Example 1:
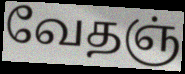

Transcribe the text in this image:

வேதஞ்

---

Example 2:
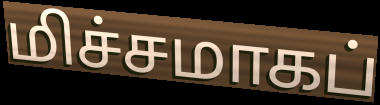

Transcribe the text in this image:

மிச்சமாகப்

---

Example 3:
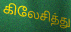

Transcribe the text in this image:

கிலேசித்து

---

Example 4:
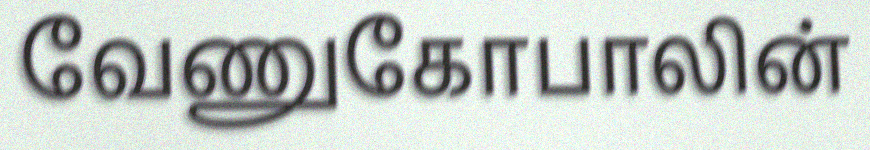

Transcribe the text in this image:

வேணுகோபாலின்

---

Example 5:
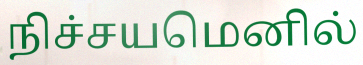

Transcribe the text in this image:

நிச்சயமெனில்